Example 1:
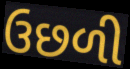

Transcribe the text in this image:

ઉછળી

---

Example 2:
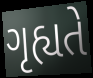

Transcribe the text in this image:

ગૃહ્યતે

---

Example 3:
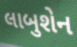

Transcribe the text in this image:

લાબુશેન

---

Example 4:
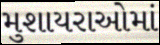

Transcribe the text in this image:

મુશાયરાઓમાં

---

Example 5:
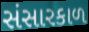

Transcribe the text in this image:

સંસારકાળ